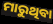
ମାରୁଥିବା